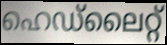
ഹെഡ്ലൈറ്റ്